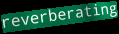
reverberating